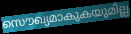
സൌഖ്യമാകുകയുമില്ല